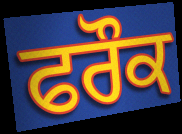
ਫਰੌਕ